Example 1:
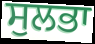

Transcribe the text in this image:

ਸੁਲਭਾ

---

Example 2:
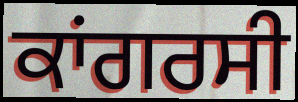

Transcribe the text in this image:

ਕਾਂਗਰਸੀ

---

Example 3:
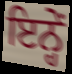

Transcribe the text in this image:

ਇਨ੍ਹੇਂ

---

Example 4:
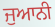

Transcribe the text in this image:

ਜੁਆਨੀ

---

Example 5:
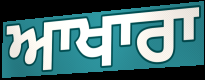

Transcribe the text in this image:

ਆਖਾਰਾ